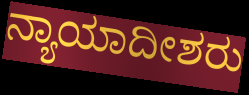
ನ್ಯಾಯಾದೀಶರು